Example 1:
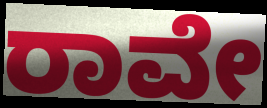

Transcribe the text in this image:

ರಾವೇ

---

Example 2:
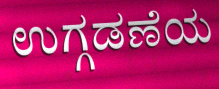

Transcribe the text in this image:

ಉಗ್ಗಡಣೆಯ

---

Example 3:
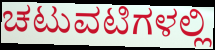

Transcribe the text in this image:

ಚಟುವಟಿಗಳಲ್ಲಿ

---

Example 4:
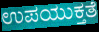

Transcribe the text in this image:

ಉಪಯುಕ್ತತೆ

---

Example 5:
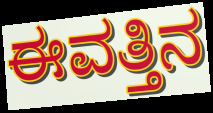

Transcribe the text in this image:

ಈವತ್ತಿನ